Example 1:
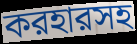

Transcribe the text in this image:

করহারসহ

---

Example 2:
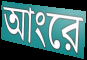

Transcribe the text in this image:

আংরে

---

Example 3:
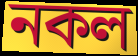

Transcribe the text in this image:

নকল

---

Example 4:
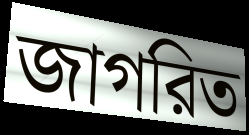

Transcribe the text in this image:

জাগরিত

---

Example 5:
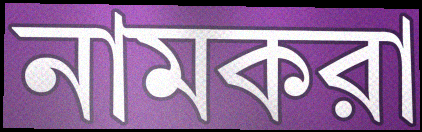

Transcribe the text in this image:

নামকরা